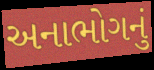
અનાભોગનું